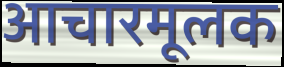
आचारमूलक